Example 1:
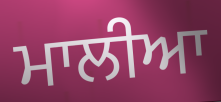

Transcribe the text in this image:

ਮਾਲੀਆ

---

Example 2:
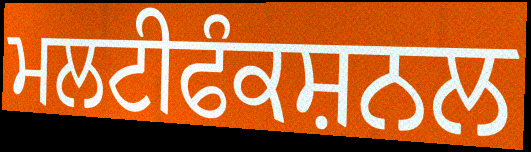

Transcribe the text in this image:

ਮਲਟੀਫੰਕਸ਼ਨਲ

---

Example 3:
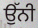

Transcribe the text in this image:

ਉੱਨੀ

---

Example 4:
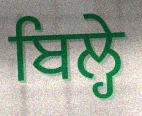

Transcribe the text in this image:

ਬਿਲ੍ਹੇ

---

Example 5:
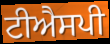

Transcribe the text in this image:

ਟੀਐਸਪੀ